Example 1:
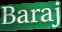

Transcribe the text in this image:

Baraj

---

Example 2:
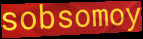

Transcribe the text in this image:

sobsomoy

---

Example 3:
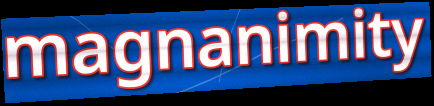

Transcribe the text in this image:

magnanimity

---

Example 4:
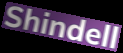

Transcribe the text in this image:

Shindell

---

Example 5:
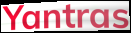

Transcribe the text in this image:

Yantras